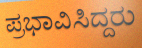
ಪ್ರಭಾವಿಸಿದ್ದರು